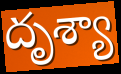
దృశ్యా